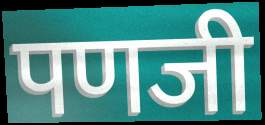
पणजी